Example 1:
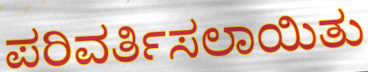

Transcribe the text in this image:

ಪರಿವರ್ತಿಸಲಾಯಿತು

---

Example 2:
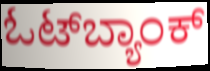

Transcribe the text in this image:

ಓಟ್‌ಬ್ಯಾಂಕ್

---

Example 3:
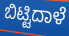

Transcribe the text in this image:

ಬಿಟ್ಟಿದಾಳೆ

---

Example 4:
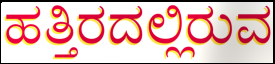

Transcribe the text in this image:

ಹತ್ತಿರದಲ್ಲಿರುವ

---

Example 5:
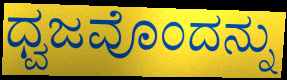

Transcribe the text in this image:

ಧ್ವಜವೊಂದನ್ನು